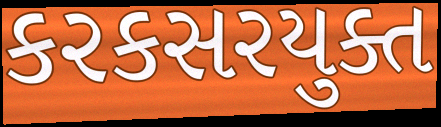
કરકસરયુક્ત